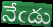
నేఁడు